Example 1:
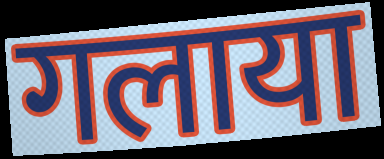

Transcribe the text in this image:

गलाया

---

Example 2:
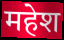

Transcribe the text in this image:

महेश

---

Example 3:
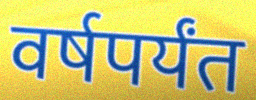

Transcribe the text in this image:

वर्षपर्यंत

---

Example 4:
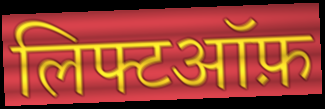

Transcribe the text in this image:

लिफ्टऑफ़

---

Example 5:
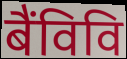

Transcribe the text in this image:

बैंविवि